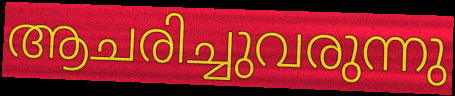
ആചരിച്ചുവരുന്നു